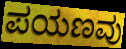
ಪಯಣವು